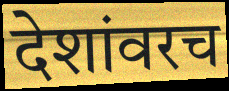
देशांवरच